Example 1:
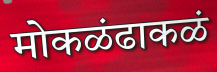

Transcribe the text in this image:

मोकळंढाकळं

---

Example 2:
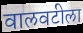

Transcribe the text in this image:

वालवटीला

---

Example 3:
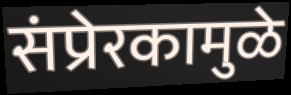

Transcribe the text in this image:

संप्रेरकामुळे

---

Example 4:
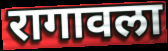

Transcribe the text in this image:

रागावला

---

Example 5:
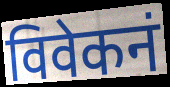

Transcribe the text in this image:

विवेकनं